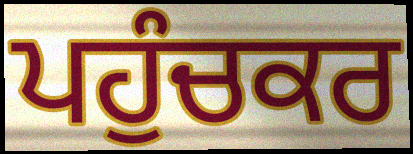
ਪਹੁੰਚਕਰ